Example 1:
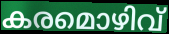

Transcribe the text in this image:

കരമൊഴിവ്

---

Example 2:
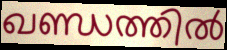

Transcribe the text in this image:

ഖണ്ഡത്തിൽ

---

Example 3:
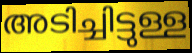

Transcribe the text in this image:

അടിച്ചിട്ടുള്ള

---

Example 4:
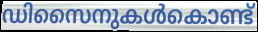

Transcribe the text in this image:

ഡിസൈനുകൾകൊണ്ട്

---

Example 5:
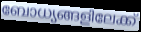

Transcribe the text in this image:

ബോധ്യങ്ങളിലേക്ക്